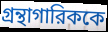
গ্রন্থাগারিককে